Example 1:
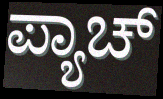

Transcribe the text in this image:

ಪ್ಯಾಚ್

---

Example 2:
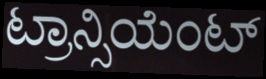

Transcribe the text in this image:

ಟ್ರಾನ್ಸಿಯೆಂಟ್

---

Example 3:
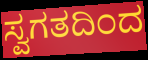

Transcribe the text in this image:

ಸ್ವಗತದಿಂದ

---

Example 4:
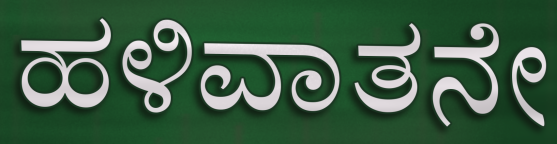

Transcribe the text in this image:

ಹಳಿವಾತನೇ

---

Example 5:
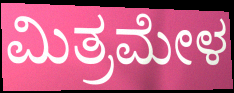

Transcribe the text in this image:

ಮಿತ್ರಮೇಳ